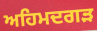
ਅਹਿਮਦਗੜ